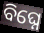
ବିଘ୍ନେ